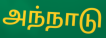
அந்நாடு